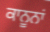
ਕਾਨੂਨਾਂ